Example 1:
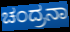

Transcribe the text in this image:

ಚಂದ್ರನಾ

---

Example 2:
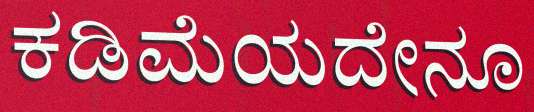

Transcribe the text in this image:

ಕಡಿಮೆಯದೇನೂ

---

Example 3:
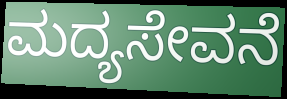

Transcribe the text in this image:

ಮದ್ಯಸೇವನೆ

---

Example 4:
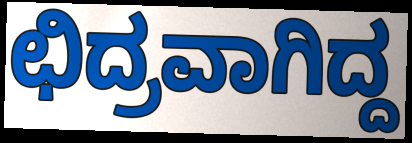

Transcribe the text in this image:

ಛಿದ್ರವಾಗಿದ್ದ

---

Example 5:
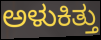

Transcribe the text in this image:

ಅಳುಕಿತ್ತು